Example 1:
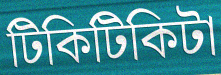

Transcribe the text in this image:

টিকিটিকিটা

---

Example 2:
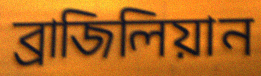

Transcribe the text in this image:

ব্রাজিলিয়ান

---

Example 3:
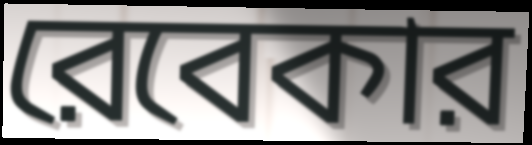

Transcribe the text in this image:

রেবেকার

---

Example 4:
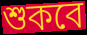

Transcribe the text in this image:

শুকবে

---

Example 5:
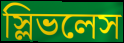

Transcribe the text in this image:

স্লিভলেস